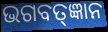
ଭଗବତ୍‌ଜ୍ଞାନ